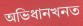
অভিধানখনত